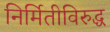
निर्मितीविरुद्ध